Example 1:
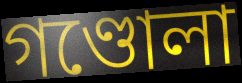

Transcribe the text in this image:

গণ্ডোলা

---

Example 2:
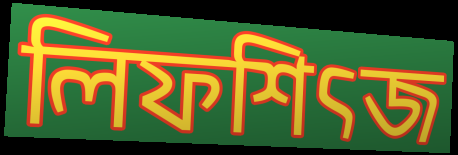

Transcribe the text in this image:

লিফশিৎজ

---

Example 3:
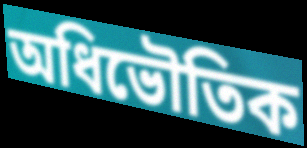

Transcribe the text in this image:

অধিভৌতিক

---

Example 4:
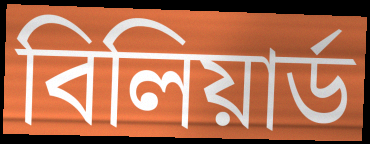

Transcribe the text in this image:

বিলিয়ার্ড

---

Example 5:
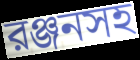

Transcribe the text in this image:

রঞ্জনসহ